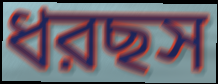
ধরছস